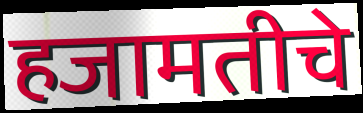
हजामतीचे